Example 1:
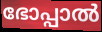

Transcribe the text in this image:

ഭോപ്പാൽ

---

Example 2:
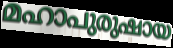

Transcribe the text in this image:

മഹാപുരുഷായ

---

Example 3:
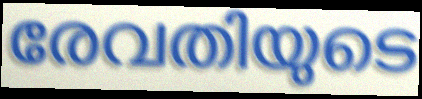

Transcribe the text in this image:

രേവതിയുടെ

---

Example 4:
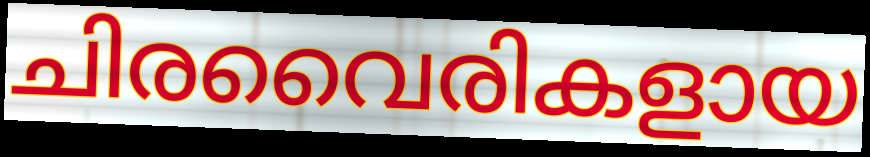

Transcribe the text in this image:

ചിരവൈരികളായ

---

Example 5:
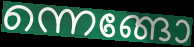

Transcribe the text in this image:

ന്നെങ്ങോ